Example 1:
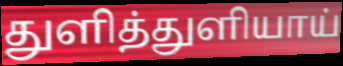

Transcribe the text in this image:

துளித்துளியாய்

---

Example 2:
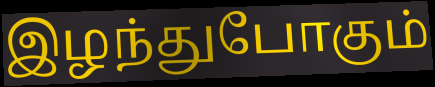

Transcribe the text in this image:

இழந்துபோகும்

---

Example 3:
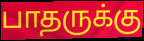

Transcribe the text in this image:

பாதருக்கு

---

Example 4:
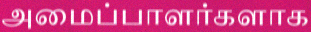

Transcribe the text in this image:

அமைப்பாளர்களாக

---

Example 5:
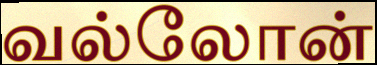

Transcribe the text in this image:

வல்லோன்